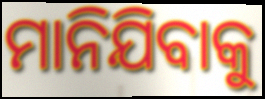
ମାନିଯିବାକୁ